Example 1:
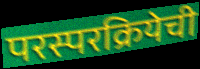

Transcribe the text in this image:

परस्परक्रियेची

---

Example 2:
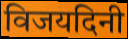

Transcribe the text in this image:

विजयदिनी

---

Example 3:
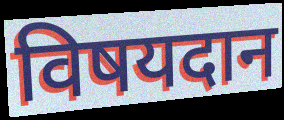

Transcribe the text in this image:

विषयदान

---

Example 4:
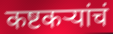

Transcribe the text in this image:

कष्टकऱ्यांचं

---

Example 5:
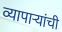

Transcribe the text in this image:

व्यापाऱ्यांची